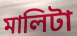
মালিটা